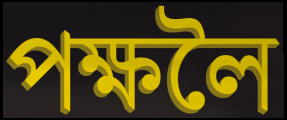
পক্ষলৈ